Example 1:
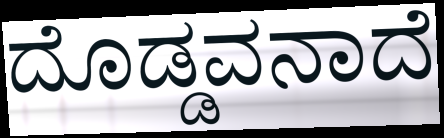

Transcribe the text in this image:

ದೊಡ್ಡವನಾದೆ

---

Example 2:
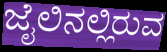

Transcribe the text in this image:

ಜೈಲಿನಲ್ಲಿರುವ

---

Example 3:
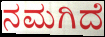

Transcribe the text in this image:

ನಮಗಿದೆ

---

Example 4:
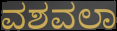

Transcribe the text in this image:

ವಶವಲಾ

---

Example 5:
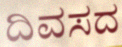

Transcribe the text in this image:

ದಿವಸದ